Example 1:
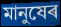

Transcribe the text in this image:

মানুষেৰ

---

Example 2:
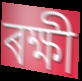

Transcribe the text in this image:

ৰক্ষী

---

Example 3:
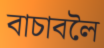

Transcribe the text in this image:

বাচাবলৈ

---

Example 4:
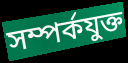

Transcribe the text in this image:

সম্পৰ্কযুক্ত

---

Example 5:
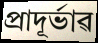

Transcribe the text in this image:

প্ৰাদূৰ্ভাৱ